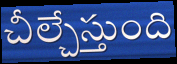
చీల్చేస్తుంది